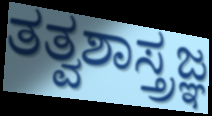
ತತ್ವಶಾಸ್ತ್ರಜ್ಞ